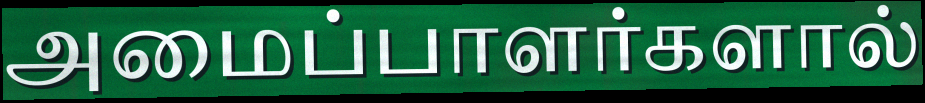
அமைப்பாளர்களால்